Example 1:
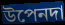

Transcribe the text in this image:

উপেনদা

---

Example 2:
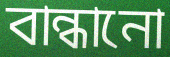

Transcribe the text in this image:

বান্ধানো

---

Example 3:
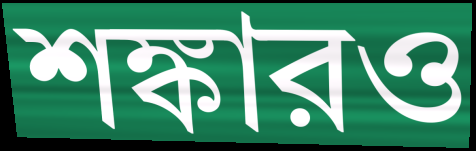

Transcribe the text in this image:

শঙ্কারও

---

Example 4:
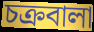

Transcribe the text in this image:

চক্রবালা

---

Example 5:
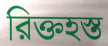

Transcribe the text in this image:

রিক্তহস্ত